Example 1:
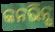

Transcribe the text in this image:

କନଭିନ୍ସ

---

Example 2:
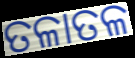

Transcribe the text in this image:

ତଳାତଳ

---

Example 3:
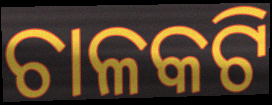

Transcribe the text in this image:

ଚାଳକଟି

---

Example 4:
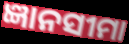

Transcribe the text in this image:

ଜ୍ଞାନସୀମା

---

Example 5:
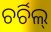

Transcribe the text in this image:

ଚର୍ଚିଲ୍